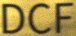
DCF